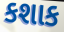
કશાક